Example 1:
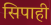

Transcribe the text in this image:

सिपाही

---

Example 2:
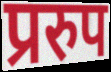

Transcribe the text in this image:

प्ररुप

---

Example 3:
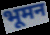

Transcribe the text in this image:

भूमन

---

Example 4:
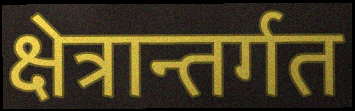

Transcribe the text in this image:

क्षेत्रान्‍तर्गत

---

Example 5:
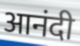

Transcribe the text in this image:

आनंदी